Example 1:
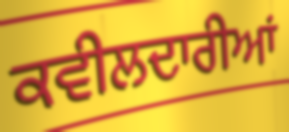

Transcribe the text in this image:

ਕਵੀਲਦਾਰੀਆਂ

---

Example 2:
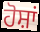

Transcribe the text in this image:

ਹੋਸ਼ਾਂ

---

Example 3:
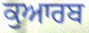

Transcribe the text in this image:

ਕੁਆਰਬ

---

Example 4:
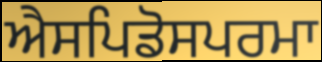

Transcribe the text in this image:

ਐਸਪਿਡੋਸਪਰਮਾ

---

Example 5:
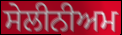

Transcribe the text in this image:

ਸੇਲੀਨੀਅਮ